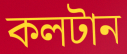
কলটান